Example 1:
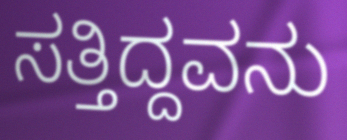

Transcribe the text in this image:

ಸತ್ತಿದ್ದವನು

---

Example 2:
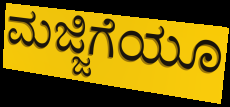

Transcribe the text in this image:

ಮಜ್ಜಿಗೆಯೂ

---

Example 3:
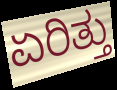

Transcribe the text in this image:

ಏರಿತ್ತು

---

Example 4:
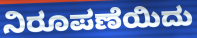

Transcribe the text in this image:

ನಿರೂಪಣೆಯಿದು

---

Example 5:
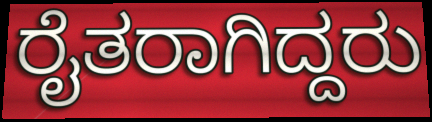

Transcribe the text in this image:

ರೈತರಾಗಿದ್ದರು